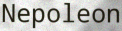
Nepoleon